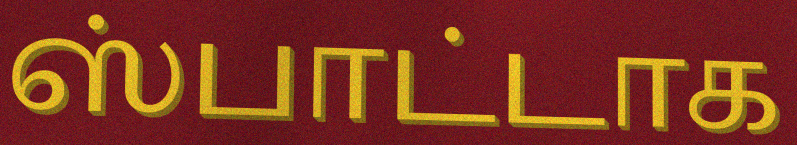
ஸ்பாட்டாக